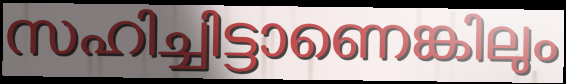
സഹിച്ചിട്ടാണെങ്കിലും